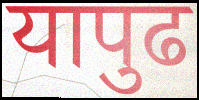
यापुढ